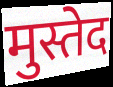
मुस्तेद